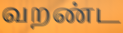
வறண்ட